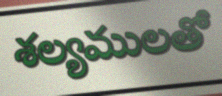
శల్యములతో